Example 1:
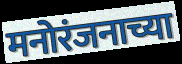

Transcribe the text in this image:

मनोरंजनाच्या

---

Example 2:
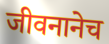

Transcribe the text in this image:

जीवनानेच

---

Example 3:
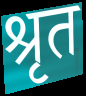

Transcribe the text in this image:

श्रृत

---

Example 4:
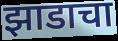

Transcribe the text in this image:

झाडाचा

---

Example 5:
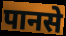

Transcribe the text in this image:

पानसे